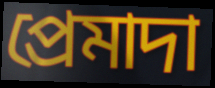
প্ৰেমাদা